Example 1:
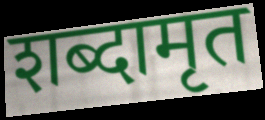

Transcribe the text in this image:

शब्दामृत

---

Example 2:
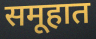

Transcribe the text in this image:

समूहात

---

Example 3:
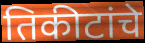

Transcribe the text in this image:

तिकीटांचे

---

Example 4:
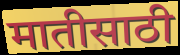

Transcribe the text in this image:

मातीसाठी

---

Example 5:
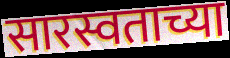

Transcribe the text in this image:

सारस्वताच्या